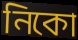
নিকো